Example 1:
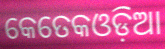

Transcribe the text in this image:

କେତେକଓଡ଼ିଆ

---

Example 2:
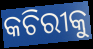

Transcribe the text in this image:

କଚିରୀକୁ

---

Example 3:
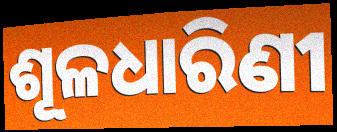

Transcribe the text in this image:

ଶୂଳଧାରିଣୀ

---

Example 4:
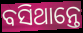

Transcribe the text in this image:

ବସିଥାନ୍ତେ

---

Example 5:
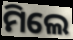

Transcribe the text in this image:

ମିଲେ